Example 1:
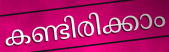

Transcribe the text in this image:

കണ്ടിരിക്കാം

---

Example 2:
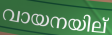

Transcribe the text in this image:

വായനയില്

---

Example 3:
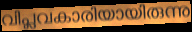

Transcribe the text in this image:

വിപ്ലവകാരിയായിരുന്നു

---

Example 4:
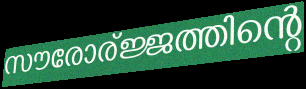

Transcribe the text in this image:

സൗരോര്ജ്ജത്തിന്റെ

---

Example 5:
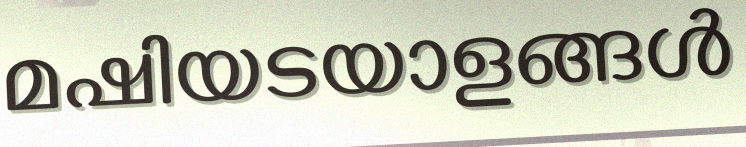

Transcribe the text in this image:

മഷിയടയാളങ്ങൾ